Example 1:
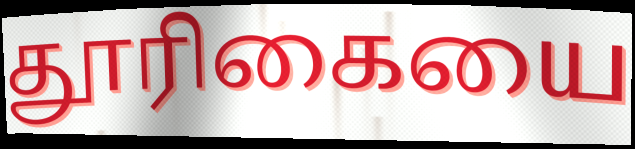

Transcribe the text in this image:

தூரிகையை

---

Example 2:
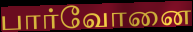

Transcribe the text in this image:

பார்வோனை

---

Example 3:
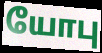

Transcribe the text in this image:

யோபு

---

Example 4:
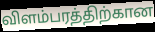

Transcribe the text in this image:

விளம்பரத்திற்கான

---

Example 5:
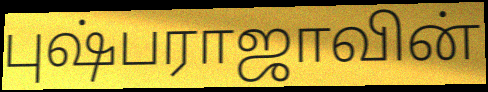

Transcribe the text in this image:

புஷ்பராஜாவின்